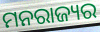
ମନରାଜ୍ୟର